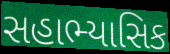
સહાભ્યાસિક